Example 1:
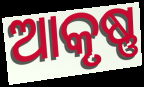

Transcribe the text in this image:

ଆକୃଷ୍ଣ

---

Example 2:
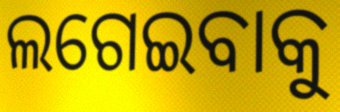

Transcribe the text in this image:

ଲଗେଇବାକୁ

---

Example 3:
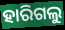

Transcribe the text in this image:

ହାରିଗଲୁ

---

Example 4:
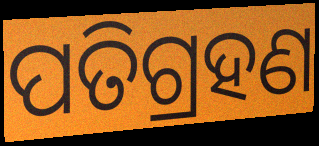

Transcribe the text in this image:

ପତିଗ୍ରହଣ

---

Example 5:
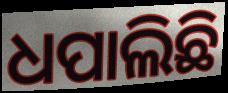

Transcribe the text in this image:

ଧପାଲିଛି